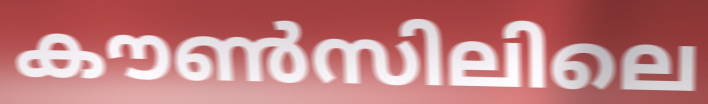
കൗൺസിലിലെ